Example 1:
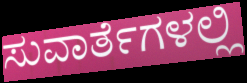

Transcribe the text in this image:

ಸುವಾರ್ತೆಗಳಲ್ಲಿ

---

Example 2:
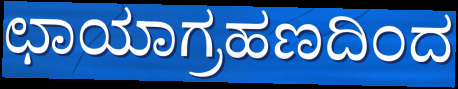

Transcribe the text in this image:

ಛಾಯಾಗ್ರಹಣದಿಂದ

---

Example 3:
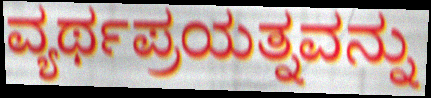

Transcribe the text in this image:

ವ್ಯರ್ಥಪ್ರಯತ್ನವನ್ನು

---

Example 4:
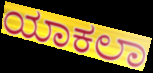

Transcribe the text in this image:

ಯಾಕಲಾ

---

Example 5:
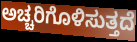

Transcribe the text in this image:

ಅಚ್ಚರಿಗೊಳಿಸುತ್ತದೆ